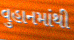
વુહાનમાંથી